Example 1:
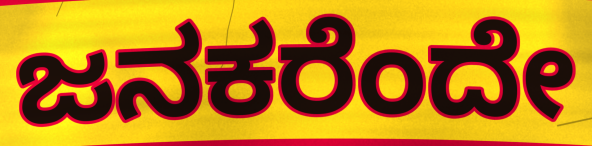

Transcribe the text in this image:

ಜನಕರೆಂದೇ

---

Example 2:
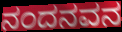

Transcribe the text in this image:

ನಂದನವನ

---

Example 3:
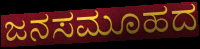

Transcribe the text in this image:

ಜನಸಮೂಹದ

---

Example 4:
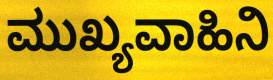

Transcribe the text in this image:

ಮುಖ್ಯವಾಹಿನಿ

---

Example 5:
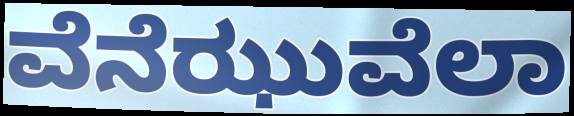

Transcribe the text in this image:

ವೆನೆಝುವೆಲಾ